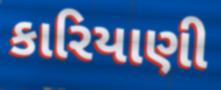
કારિયાણી